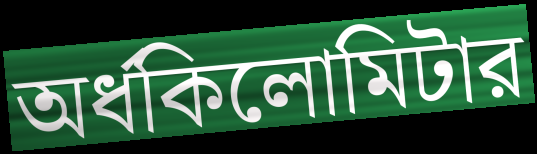
অর্ধকিলোমিটার